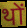
थों